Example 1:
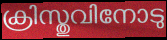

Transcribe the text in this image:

ക്രിസ്തുവിനോടു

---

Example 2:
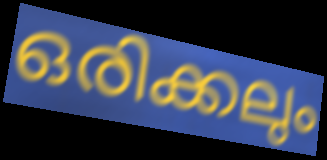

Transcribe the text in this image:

ഒരിക്കലും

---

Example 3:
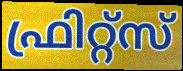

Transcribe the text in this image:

ഫ്രിറ്റ്സ്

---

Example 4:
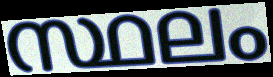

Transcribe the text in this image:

സ്ഥലം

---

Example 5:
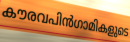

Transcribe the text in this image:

കൗരവപിൻഗാമികളുടെ